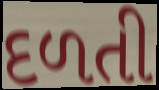
દળતી